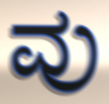
ವು